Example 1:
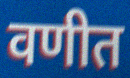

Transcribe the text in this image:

वणीत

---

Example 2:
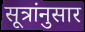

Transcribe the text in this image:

सूत्रांनुसार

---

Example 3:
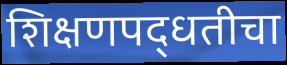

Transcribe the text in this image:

शिक्षणपद्धतीचा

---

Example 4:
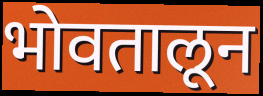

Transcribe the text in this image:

भोवतालून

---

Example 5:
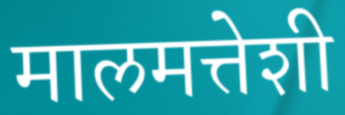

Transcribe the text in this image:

मालमत्तेशी